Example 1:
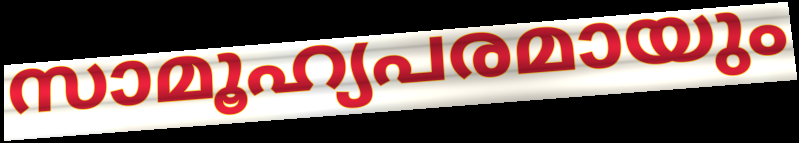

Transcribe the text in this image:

സാമൂഹ്യപരമായും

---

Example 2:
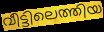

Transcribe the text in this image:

വീട്ടിലെത്തിയ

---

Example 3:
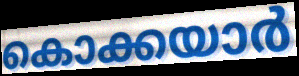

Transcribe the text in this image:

കൊക്കയാർ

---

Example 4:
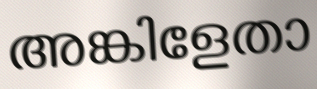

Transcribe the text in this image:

അങ്കിളേതാ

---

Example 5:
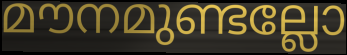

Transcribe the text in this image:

മൗനമുണ്ടല്ലോ